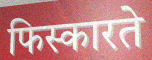
फिस्कारते